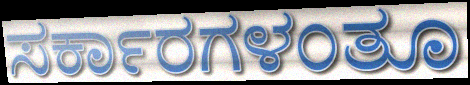
ಸರ್ಕಾರಗಳಂತೂ